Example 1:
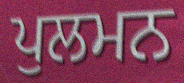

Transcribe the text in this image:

ਪੁਲਮਨ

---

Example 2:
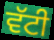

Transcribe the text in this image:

ਵੱਟੀ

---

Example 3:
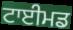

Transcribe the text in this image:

ਟਾਈਮਡ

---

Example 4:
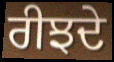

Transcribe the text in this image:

ਰੀਝਦੇ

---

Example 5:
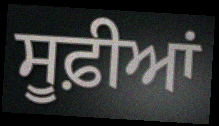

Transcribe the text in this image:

ਸੂਫ਼ੀਆਂ